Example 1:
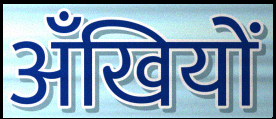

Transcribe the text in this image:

अँखियों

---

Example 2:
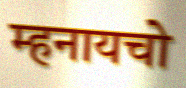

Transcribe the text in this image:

म्हनायचो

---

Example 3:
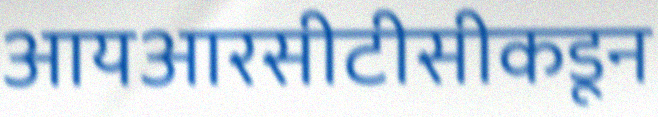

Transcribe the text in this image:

आयआरसीटीसीकडून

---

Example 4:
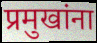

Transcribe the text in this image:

प्रमुखांना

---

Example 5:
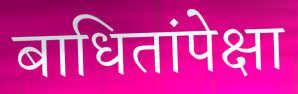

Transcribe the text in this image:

बाधितांपेक्षा